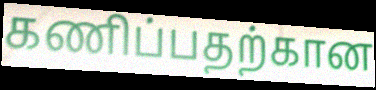
கணிப்பதற்கான